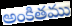
అంకితము